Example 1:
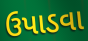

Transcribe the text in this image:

ઉપાડવા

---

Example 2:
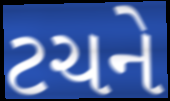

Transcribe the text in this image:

ટચને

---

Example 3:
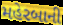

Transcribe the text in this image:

મહેરબાની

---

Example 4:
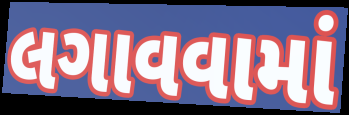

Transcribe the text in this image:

લગાવવામાં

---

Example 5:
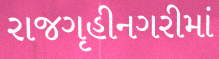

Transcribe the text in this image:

રાજગૃહીનગરીમાં